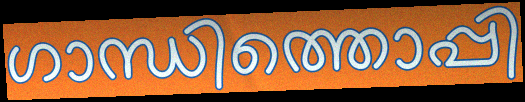
ഗാന്ധിത്തൊപ്പി